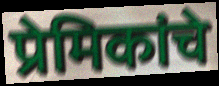
प्रेमिकांचे